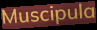
Muscipula